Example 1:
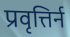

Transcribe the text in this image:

प्रवृत्तिर्न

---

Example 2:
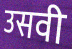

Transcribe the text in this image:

उसवी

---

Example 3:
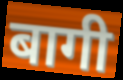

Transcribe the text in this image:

बागी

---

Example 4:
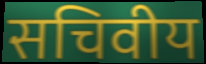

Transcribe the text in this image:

सचिवीय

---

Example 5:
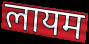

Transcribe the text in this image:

लायम